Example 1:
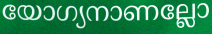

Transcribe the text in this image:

യോഗ്യനാണല്ലോ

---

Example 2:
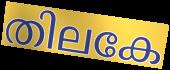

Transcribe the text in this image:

തിലകേ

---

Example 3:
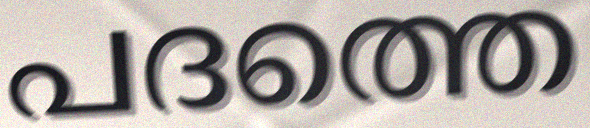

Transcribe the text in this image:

പദത്തെ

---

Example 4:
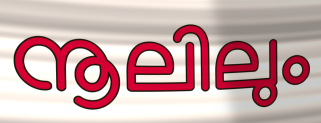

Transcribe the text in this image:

നൂലിലും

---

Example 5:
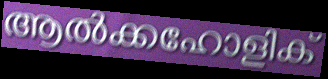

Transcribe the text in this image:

ആൽക്കഹോളിക്